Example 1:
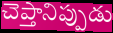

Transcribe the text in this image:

చెప్తానిప్పుడు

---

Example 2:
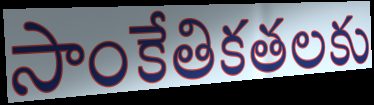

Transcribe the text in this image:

సాంకేతికతలకు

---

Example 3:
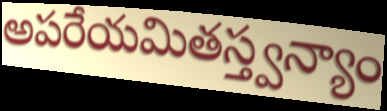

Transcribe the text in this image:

అపరేయమితస్త్వన్యాం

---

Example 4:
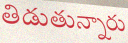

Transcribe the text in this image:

తిడుతున్నారు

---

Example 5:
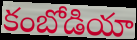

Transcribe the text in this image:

కంబోడియా